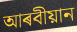
আৰবীয়ান